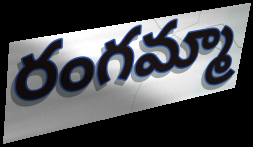
రంగమ్మా